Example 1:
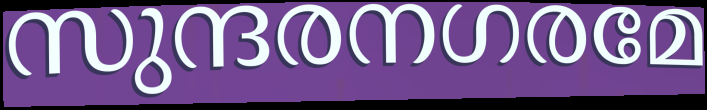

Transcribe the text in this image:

സുന്ദരനഗരമേ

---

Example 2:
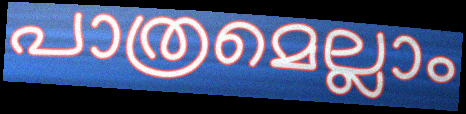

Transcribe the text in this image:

പാത്രമെല്ലാം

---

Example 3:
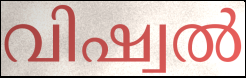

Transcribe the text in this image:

വിഷ്വൽ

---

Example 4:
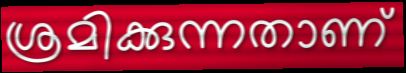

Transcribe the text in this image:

ശ്രമിക്കുന്നതാണ്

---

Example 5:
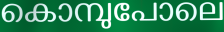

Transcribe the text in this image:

കൊമ്പുപോലെ